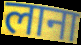
लाना